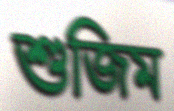
শুজিম